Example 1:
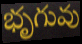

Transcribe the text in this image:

భృగువు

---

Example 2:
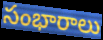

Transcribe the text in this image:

సంభారాలు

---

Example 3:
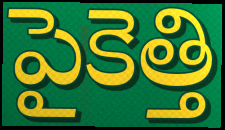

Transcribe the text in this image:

పైకెత్తి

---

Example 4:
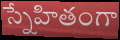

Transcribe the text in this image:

స్నేహితంగా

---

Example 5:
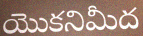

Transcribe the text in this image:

యొకనిమీద